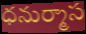
ధనుర్మాస